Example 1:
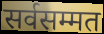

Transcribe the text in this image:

सर्वसम्मत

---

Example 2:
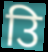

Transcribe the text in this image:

उि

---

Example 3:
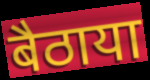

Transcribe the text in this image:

बैठाया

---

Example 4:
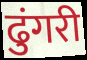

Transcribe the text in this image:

ढुंगरी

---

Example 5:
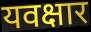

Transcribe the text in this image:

यवक्षार